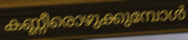
കണ്ണീരൊഴുക്കുമ്പോൾ